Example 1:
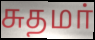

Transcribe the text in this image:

சுதமர்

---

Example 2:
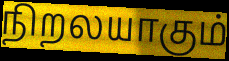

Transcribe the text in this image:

நிறலயாகும்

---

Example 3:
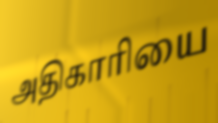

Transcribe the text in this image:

அதிகாரியை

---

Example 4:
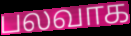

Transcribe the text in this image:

பலவாக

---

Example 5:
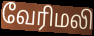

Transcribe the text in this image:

வேரிமலி